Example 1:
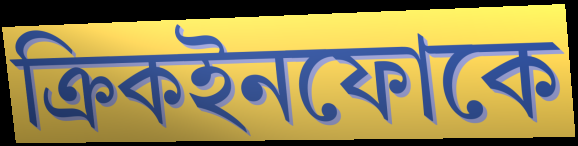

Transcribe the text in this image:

ক্রিকইনফোকে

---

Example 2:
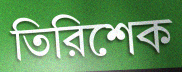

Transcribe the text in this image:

তিরিশেক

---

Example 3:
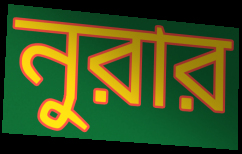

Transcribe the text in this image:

নুরার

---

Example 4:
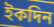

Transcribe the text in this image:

ইকদিন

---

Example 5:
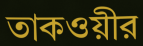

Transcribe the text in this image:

তাকওয়ীর